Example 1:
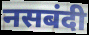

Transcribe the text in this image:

नसबंदी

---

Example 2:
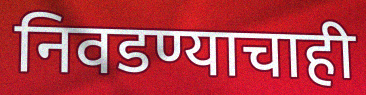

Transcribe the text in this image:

निवडण्याचाही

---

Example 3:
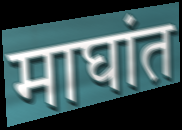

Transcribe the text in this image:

माघांत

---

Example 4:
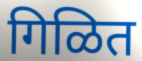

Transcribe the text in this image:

गिळित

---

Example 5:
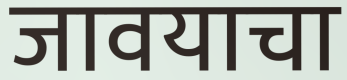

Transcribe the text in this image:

जावयाचा